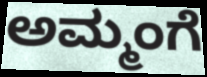
ಅಮ್ಮಂಗೆ